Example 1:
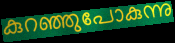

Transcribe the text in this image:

കുറഞ്ഞുപോകുന്നു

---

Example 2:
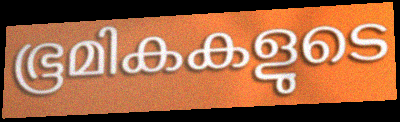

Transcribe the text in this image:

ഭൂമികകളുടെ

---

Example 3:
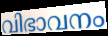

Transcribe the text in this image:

വിഭാവനം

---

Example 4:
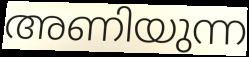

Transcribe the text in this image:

അണിയുന്ന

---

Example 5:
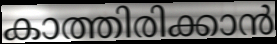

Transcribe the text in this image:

കാത്തിരിക്കാൻ